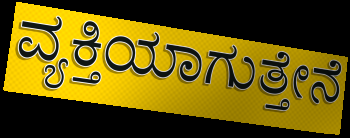
ವ್ಯಕ್ತಿಯಾಗುತ್ತೇನೆ